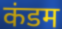
कंडम